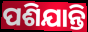
ପଶିଯାନ୍ତି